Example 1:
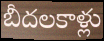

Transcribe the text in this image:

బీదలకాళ్లు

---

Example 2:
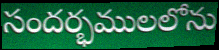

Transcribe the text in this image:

సందర్భములలోను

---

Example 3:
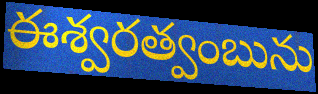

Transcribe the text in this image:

ఈశ్వరత్వంబును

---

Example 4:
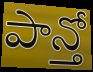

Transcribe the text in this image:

పాన్తో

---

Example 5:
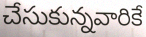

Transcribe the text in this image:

చేసుకున్నవారికే